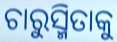
ଚାରୁସ୍ମିତାକୁ